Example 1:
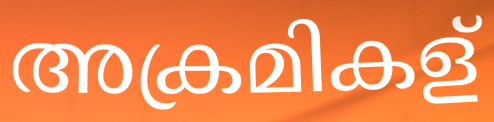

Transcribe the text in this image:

അക്രമികള്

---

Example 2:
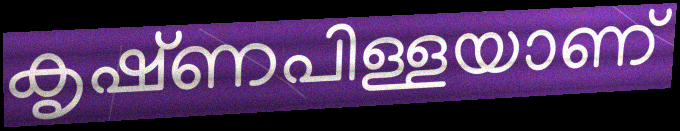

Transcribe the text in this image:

കൃഷ്‌ണപിള്ളയാണ്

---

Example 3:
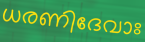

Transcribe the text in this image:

ധരണിദേവാഃ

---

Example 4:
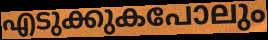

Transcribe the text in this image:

എടുക്കുകപോലും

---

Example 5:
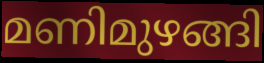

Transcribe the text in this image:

മണിമുഴങ്ങി